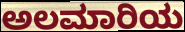
ಅಲಮಾರಿಯ